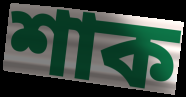
শাক